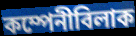
কম্পেনীবিলাক